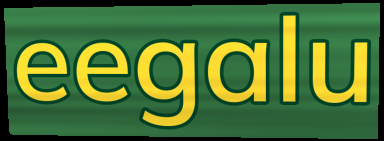
eegalu